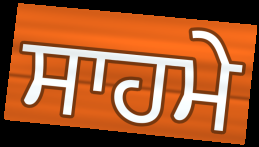
ਸਾਹਮੇ